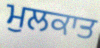
ਮੁਲਕਾਤ